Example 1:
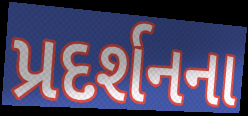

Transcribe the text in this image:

પ્રદર્શનના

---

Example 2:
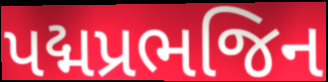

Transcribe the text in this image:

પદ્મપ્રભજિન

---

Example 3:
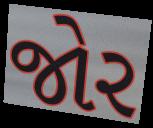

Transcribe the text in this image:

જોર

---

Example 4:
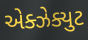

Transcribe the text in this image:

એક્ઝેક્યુટ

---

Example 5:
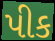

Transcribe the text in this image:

પીક